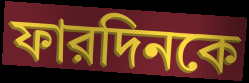
ফারদিনকে